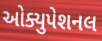
ઓક્યુપેશનલ